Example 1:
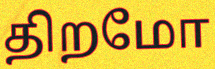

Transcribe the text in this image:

திறமோ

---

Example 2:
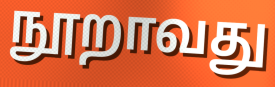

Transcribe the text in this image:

நூறாவது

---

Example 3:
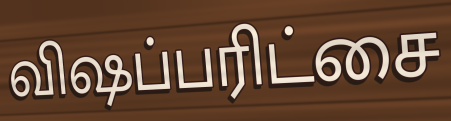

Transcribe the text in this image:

விஷப்பரிட்சை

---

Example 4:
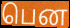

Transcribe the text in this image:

பென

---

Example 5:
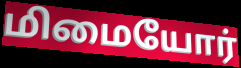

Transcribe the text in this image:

மிமையோர்